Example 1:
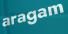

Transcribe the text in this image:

aragam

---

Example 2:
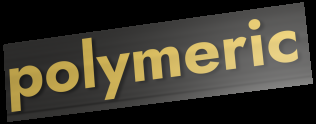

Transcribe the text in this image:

polymeric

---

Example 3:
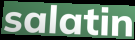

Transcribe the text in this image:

salatin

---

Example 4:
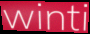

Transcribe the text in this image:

winti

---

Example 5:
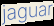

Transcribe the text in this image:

jaguar